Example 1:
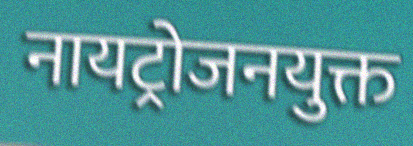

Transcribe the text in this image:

नायट्रोजनयुक्त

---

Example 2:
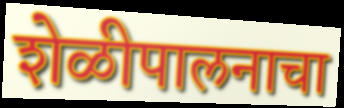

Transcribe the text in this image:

शेळीपालनाचा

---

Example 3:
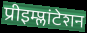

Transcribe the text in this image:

प्रीइम्प्लांटेशन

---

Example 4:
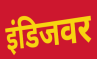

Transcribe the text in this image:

इंडिजवर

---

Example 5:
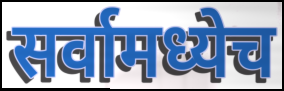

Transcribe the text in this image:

सर्वामध्येच